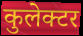
कुलेक्टर